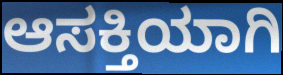
ಆಸಕ್ತಿಯಾಗಿ